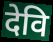
देवि